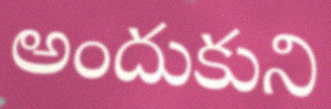
అందుకుని